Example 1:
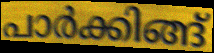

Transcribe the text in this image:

പാർക്കിങ്ങ്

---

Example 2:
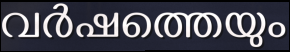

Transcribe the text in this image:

വർഷത്തെയും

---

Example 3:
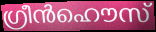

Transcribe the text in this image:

ഗ്രീൻഹൌസ്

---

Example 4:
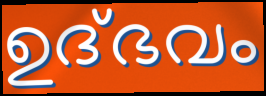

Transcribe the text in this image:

ഉദ്ഭവം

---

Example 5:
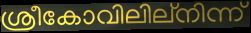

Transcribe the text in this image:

ശ്രീകോവിലില്നിന്ന്